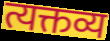
त्यक्तव्य